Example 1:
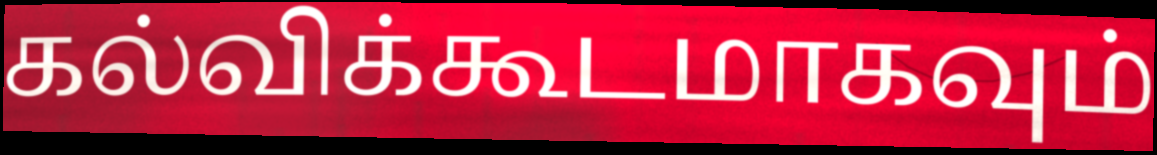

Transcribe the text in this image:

கல்விக்கூடமாகவும்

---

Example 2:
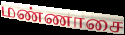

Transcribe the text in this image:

மண்ணாசை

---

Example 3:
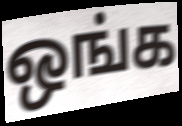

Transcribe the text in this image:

ஒங்க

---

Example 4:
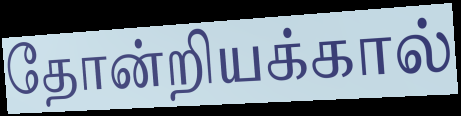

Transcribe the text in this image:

தோன்றியக்கால்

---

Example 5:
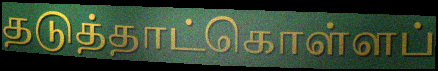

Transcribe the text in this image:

தடுத்தாட்கொள்ளப்